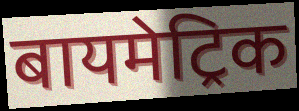
बायमेट्रिक